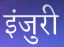
इंजुरी